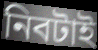
নিবটাই